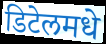
डिटेलमधे